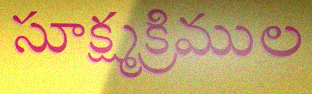
సూక్ష్మక్రిముల